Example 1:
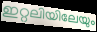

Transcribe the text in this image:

ഇറ്റലിയിലേയും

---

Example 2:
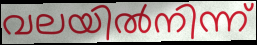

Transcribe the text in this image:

വലയിൽനിന്ന്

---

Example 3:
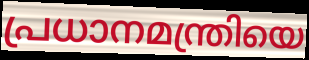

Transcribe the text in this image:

പ്രധാനമന്ത്രിയെ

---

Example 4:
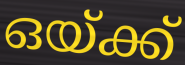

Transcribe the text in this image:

ഒയ്ക്ക്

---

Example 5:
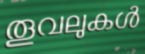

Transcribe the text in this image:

തൂവലുകൾ